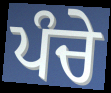
ਪੰਚੇ